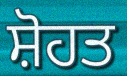
ਸ਼ੋਹਤ